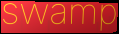
swamp